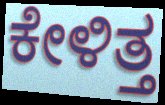
ಕೇಳಿತ್ತ